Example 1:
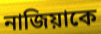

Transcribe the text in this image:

নাজিয়াকে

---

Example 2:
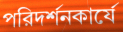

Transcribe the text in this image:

পরিদর্শনকার্যে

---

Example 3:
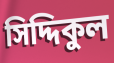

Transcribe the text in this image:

সিদ্দিকুল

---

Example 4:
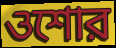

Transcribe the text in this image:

ওশোর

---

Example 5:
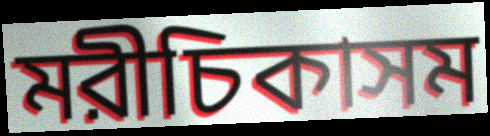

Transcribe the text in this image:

মরীচিকাসম